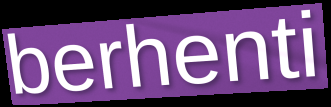
berhenti